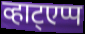
व्हाट्एप्प